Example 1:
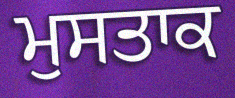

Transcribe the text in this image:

ਮੁਸਤਾਕ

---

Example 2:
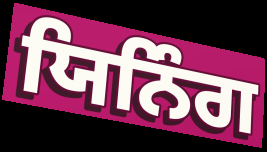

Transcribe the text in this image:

ਯਿਨਿੰਗ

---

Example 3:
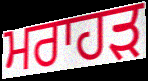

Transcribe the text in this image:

ਮਰਾਹੜ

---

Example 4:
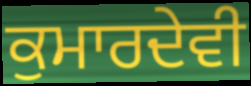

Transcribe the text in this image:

ਕੁਮਾਰਦੇਵੀ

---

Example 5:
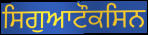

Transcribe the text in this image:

ਸਿਗੁਆਟੌਕਸਿਨ